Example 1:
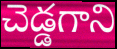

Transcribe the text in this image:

చెడ్డగాని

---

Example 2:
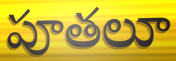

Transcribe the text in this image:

పూతలూ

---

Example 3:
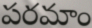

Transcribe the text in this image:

పరమాం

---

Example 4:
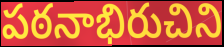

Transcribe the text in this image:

పఠనాభిరుచిని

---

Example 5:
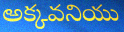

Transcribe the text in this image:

అక్కవనియు